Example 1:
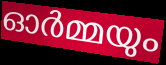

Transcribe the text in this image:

ഓർമ്മയും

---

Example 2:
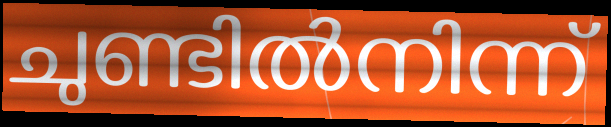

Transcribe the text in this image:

ചുണ്ടിൽനിന്ന്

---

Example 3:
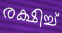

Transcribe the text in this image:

രക്ഷിച്ച്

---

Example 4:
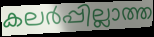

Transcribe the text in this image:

കലർപ്പില്ലാത്ത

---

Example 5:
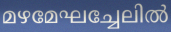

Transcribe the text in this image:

മഴമേഘച്ചേലിൽ